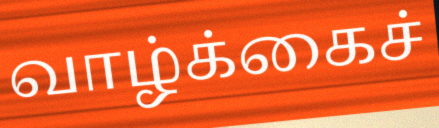
வாழ்க்கைச்